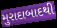
મુરાદાબાદથી